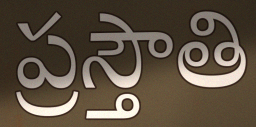
ప్రస్తౌతి